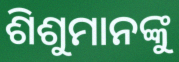
ଶିଶୁମାନଙ୍କୁ